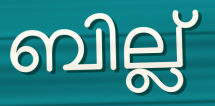
ബില്ല്